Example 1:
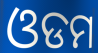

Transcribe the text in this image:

ଓଡମ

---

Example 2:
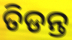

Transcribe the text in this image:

ତିଡନ୍ତ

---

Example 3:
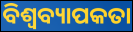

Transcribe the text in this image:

ବିଶ୍ୱବ୍ୟାପକତା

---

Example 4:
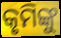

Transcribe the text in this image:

କୃମିଙ୍କୁ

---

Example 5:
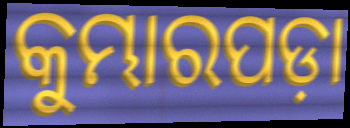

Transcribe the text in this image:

କୁମ୍ଭାରପଡ଼ା